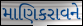
માણિકરાવને